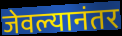
जेवल्यानंतर